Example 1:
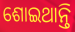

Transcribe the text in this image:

ଶୋଇଥାନ୍ତି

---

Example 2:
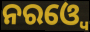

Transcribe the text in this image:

ନରଓ୍ୱେ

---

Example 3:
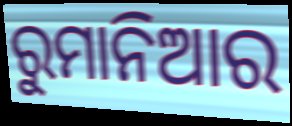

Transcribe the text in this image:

ରୁମାନିଆର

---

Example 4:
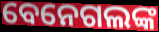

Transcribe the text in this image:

ବେନେଗଲଙ୍କ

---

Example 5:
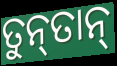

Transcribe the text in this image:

ତୁନ୍‍ତାନ୍